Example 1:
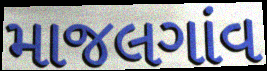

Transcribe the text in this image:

માજલગાંવ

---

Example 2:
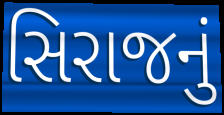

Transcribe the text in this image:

સિરાજનું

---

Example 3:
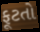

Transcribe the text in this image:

ફૂટતો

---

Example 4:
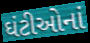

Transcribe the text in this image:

ઘંટીઓનાં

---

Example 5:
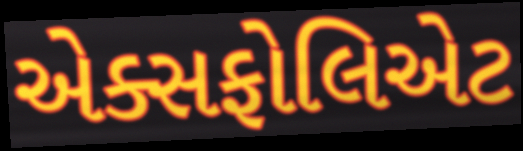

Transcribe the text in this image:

એક્સફોલિએટ